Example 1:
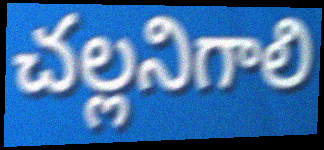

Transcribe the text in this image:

చల్లనిగాలి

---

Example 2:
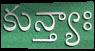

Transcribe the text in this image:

కున్త్యాః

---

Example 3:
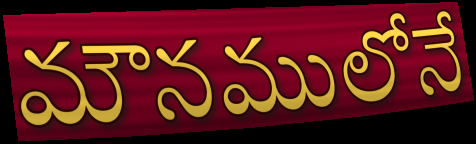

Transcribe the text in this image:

మౌనములోనే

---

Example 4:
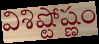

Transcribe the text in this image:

విశిష్టోష్ణం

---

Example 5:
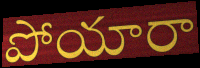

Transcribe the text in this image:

పోయారా